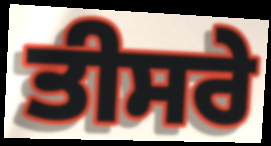
ਤੀਸਰੇ